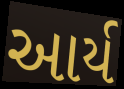
આર્ય